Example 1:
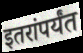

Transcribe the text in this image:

इतरांपर्यंत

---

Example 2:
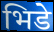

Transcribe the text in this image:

भिडे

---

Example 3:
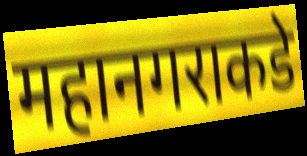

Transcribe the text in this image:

महानगराकडे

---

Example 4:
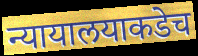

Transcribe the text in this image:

न्यायालयाकडेच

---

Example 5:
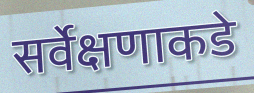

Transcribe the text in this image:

सर्वेक्षणाकडे